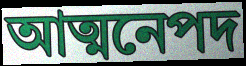
আত্মনেপদ